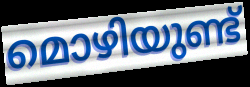
മൊഴിയുണ്ട്